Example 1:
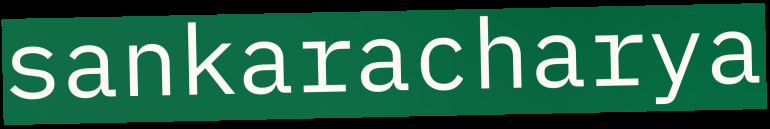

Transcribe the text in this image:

sankaracharya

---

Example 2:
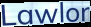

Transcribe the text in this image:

Lawlor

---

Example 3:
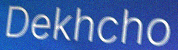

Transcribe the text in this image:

Dekhcho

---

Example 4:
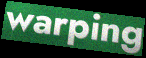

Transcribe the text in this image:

warping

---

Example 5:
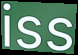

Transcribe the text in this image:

iss